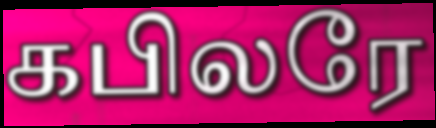
கபிலரே